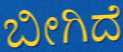
ಬೀಗಿದೆ